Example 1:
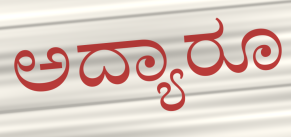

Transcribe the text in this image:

ಅದ್ಯಾರೂ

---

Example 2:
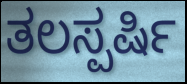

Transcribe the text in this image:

ತಲಸ್ಪರ್ಷಿ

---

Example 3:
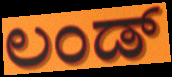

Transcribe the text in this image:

ಲಂಡ್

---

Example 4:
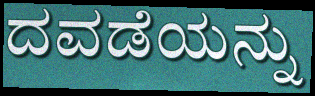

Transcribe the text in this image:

ದವಡೆಯನ್ನು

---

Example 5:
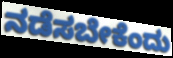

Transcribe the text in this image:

ನಡೆಸಬೇಕೆಂದು